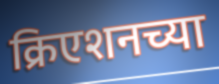
क्रिएशनच्या